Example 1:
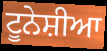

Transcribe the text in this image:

ਟੂਨੇਸ਼ੀਆ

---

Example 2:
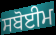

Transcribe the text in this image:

ਸਬੋਈਮ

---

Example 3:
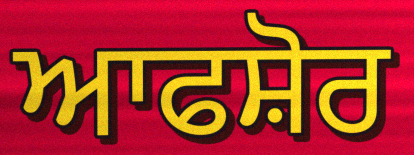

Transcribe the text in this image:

ਆਫਸ਼ੋਰ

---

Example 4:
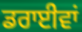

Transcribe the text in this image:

ਡਰਾਈਵਾਂ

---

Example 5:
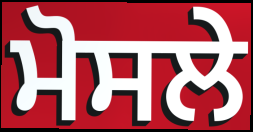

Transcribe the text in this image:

ਮੋਸਲੇ